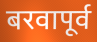
बरवापूर्व